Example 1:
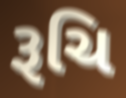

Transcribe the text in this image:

રૂચિ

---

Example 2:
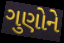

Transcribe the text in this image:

ગુણોને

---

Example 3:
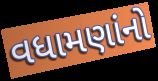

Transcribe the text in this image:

વધામણાંનો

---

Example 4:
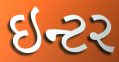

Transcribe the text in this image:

ઇન્ટર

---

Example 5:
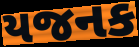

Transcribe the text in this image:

યજનક